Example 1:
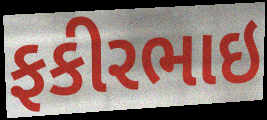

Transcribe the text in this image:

ફકીરભાઇ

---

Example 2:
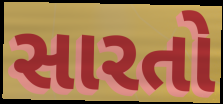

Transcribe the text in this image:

સારતો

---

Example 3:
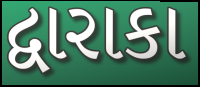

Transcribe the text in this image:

દ્વારાકા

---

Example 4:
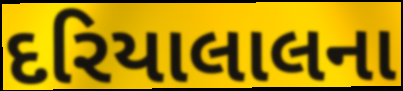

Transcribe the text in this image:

દરિયાલાલના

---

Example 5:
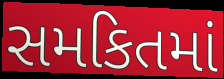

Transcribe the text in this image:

સમકિતમાં